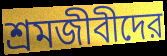
শ্রমজীবীদের